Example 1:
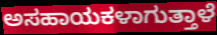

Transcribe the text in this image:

ಅಸಹಾಯಕಳಾಗುತ್ತಾಳೆ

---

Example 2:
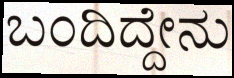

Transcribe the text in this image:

ಬಂದಿದ್ದೇನು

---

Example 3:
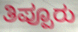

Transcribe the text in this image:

ತಿಪ್ಪೂರು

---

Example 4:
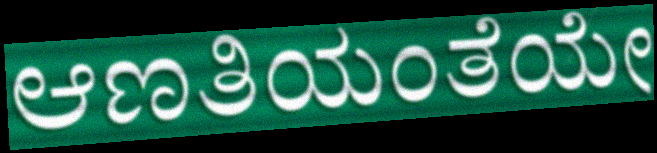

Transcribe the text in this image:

ಆಣತಿಯಂತೆಯೇ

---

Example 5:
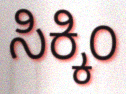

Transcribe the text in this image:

ಸಿಕ್ಕಿಂ